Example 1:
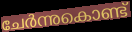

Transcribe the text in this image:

ചേർന്നുകൊണ്ട്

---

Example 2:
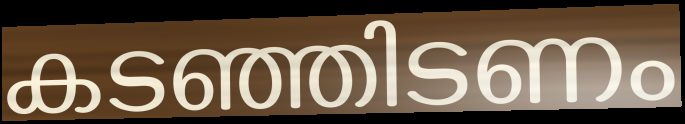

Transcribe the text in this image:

കടഞ്ഞിടണം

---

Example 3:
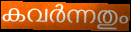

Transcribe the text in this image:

കവർന്നതും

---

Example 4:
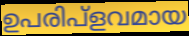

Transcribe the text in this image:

ഉപരിപ്ളവമായ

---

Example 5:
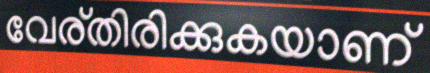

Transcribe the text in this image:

വേര്തിരിക്കുകയാണ്